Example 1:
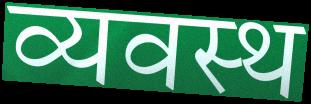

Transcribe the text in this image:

व्यवस्थ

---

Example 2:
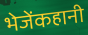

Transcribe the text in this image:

भेजेंकहानी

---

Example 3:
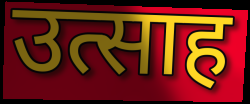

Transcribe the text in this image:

उत्साह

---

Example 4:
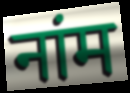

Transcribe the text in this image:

नांम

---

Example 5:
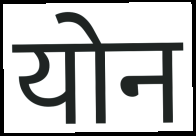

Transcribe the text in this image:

योन